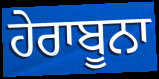
ਹੇਰਾਬੂਨਾ